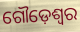
ଗୌଡ଼େଶ୍ୱର